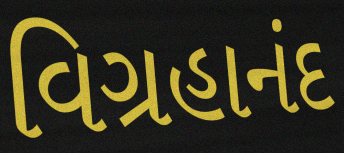
વિગ્રહાનંદ